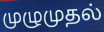
முழுமுதல்